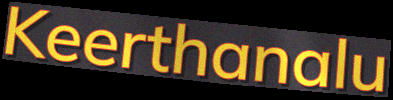
Keerthanalu